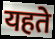
यहते